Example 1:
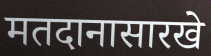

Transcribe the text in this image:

मतदानासारखे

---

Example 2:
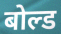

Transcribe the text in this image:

बोल्ड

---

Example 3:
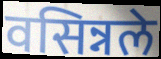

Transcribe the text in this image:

वसिन्नले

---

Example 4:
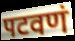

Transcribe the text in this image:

पटवणं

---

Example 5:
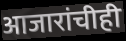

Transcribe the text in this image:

आजारांचीही